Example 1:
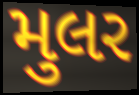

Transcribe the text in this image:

મુલર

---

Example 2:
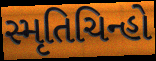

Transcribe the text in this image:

સ્મૃતિચિન્હો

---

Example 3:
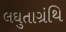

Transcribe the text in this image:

લઘુતાગ્રંથિ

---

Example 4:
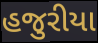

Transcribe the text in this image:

હજુરીયા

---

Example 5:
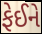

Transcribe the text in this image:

ફેઈને